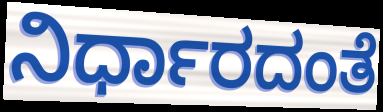
ನಿರ್ಧಾರದಂತೆ